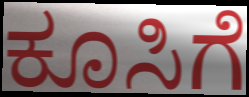
ಕೂಸಿಗೆ